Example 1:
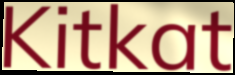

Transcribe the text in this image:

Kitkat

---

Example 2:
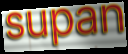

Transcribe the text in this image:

supan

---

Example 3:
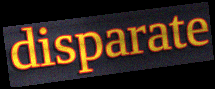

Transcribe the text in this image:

disparate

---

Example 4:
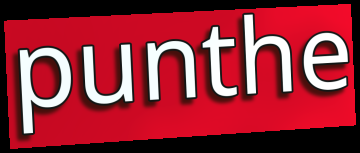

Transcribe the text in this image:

punthe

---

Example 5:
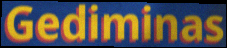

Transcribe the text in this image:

Gediminas